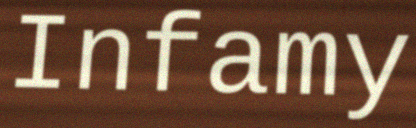
Infamy